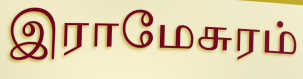
இராமேசுரம்